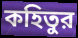
কহিতুর